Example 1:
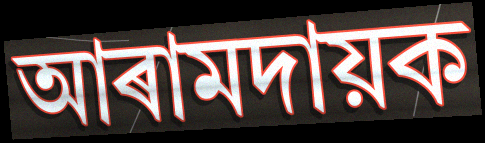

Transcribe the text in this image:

আৰামদায়ক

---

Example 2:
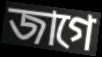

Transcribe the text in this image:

জাগে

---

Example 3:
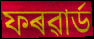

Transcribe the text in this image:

ফৰৱাৰ্ড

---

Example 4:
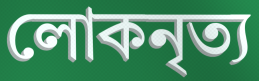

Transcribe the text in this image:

লোকনৃত্য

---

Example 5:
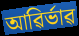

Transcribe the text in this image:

আৱিৰ্ভাৱ